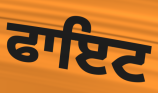
ਫਾਇਟ